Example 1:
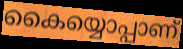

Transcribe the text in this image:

കൈയ്യൊപ്പാണ്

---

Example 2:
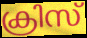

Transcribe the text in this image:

ക്രിസ്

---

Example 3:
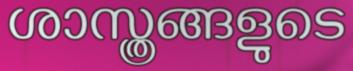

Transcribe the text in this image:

ശാസ്ത്രങ്ങളുടെ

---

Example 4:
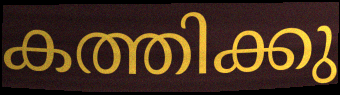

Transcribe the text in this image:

കത്തിക്കു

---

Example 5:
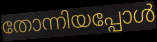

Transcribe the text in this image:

തോന്നിയപ്പോൾ